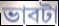
ভাবটা